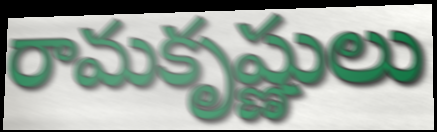
రామకృష్ణులు